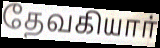
தேவகியார்